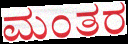
ಮಂತರ